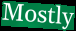
Mostly